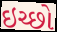
ઇચ્છો